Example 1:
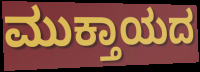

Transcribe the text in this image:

ಮುಕ್ತಾಯದ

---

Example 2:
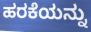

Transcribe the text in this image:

ಹರಕೆಯನ್ನು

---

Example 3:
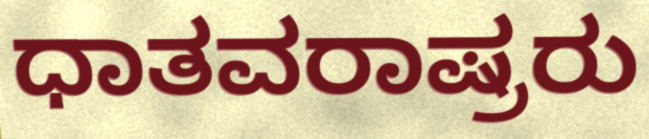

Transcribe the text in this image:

ಧಾತವರಾಷ್ರರು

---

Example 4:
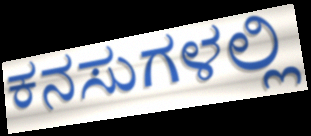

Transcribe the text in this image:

ಕನಸುಗಳಲ್ಲಿ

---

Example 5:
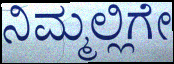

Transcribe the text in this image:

ನಿಮ್ಮಲ್ಲಿಗೇ